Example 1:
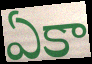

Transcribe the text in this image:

ఏకా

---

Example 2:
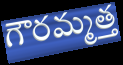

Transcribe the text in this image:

గౌరమ్మత్త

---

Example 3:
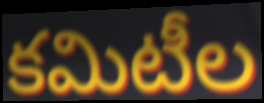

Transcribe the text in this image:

కమిటీల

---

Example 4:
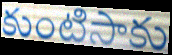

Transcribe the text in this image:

కుంటిసాకు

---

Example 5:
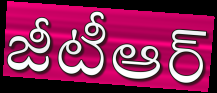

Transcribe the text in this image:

జీటీఆర్